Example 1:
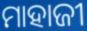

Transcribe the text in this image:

ମାହାଜୀ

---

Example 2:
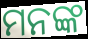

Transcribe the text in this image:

ମନଙ୍କ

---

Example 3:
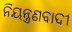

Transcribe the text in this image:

ନିୟନ୍ତ୍ରଣବାଦୀ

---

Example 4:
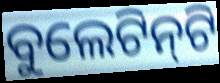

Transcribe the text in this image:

ବୁଲେଟିନ୍‍ଟି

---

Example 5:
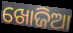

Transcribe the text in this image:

ଖୋଜିଆ